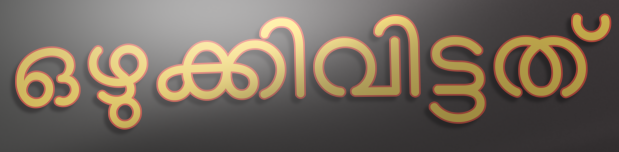
ഒഴുക്കിവിട്ടത്